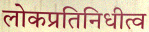
लोकप्रतिनिधीत्व